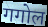
गगोल